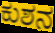
ಕುಶನ